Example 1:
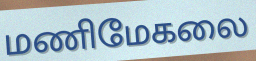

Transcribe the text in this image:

மணிமேகலை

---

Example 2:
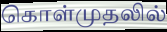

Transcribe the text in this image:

கொள்முதலில்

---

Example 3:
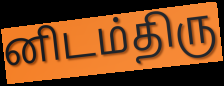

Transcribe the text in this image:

னிடம்திரு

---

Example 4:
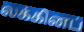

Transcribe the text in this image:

லக்கினப்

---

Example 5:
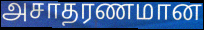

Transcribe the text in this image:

அசாதரணமான